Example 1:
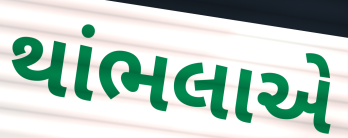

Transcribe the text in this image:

થાંભલાએ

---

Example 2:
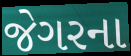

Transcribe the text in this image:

જેગરના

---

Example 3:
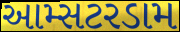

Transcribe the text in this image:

આમ્સટરડામ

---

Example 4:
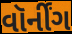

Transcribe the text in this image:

વૉર્નીંગ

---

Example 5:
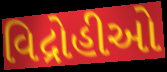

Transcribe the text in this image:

વિદ્રોહીઓ